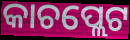
କାଚପ୍ଲେଟ